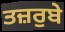
ਤਜ਼ਰੁਬੇ